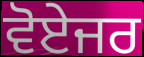
ਵੋਏਜਰ